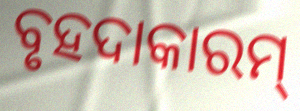
ବୃହଦାକାରମ୍